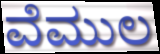
ವೆಮುಲ